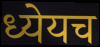
ध्येयच